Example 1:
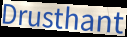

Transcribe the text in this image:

Drusthant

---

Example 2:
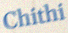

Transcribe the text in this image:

Chithi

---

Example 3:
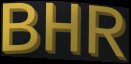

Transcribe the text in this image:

BHR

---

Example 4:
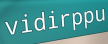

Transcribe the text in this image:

vidirppu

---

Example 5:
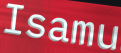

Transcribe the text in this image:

Isamu